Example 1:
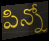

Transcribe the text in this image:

పిన్నో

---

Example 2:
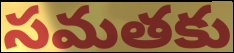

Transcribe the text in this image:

సమతకు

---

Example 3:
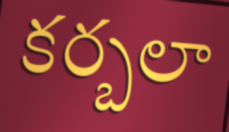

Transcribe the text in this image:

కర్బలా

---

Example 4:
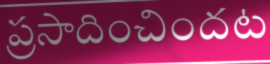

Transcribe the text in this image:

ప్రసాదించిందట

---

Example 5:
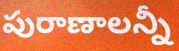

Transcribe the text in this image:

పురాణాలన్నీ